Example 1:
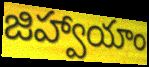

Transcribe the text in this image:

జిహ్వాయాం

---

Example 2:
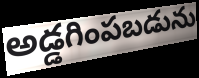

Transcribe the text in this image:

అడ్డగింపబడును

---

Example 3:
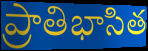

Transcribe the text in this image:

ప్రాతిభాసిత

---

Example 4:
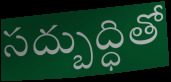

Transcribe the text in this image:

సద్బుద్ధితో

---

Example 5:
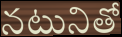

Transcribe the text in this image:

నటునితో